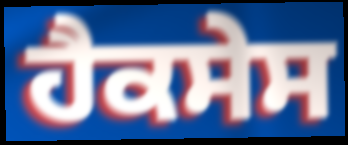
ਹੈਕਸੇਸ